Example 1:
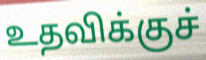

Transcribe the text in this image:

உதவிக்குச்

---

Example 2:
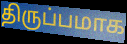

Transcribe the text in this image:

திருப்பமாக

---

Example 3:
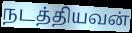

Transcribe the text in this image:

நடத்தியவன்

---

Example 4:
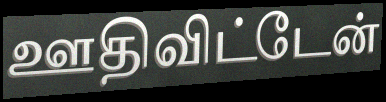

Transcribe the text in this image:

ஊதிவிட்டேன்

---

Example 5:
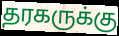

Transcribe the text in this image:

தரகருக்கு